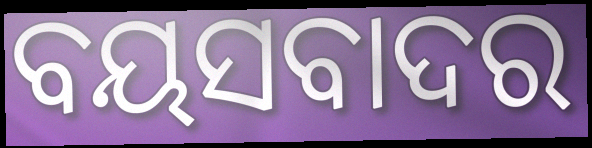
ବୟସବାଦର